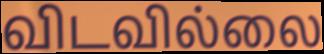
விடவில்லை